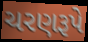
ચરણરૂપે